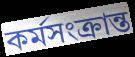
কর্মসংক্রান্ত